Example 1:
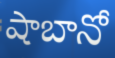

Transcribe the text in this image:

షాబానో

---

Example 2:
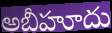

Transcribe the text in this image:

అబీహూదు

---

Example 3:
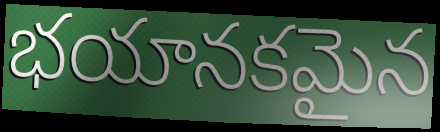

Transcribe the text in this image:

భయానకమైన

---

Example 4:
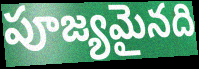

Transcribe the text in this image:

పూజ్యమైనది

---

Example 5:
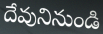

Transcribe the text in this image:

దేవునినుండి